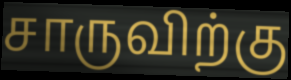
சாருவிற்கு